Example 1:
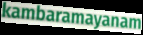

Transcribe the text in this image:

kambaramayanam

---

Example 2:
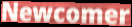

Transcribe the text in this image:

Newcomer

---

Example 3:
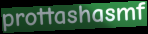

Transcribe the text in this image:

prottashasmf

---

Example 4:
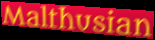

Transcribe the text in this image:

Malthusian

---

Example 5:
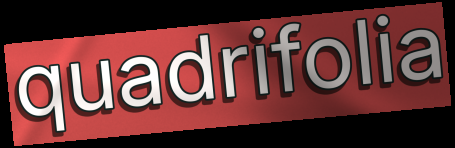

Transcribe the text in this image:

quadrifolia